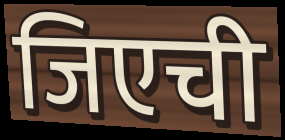
जिएची